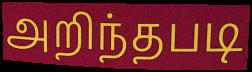
அறிந்தபடி